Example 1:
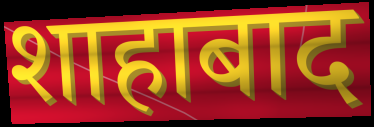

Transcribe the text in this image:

शाहाबाद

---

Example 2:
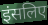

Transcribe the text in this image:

इंसलिए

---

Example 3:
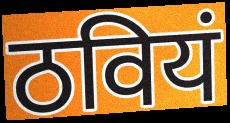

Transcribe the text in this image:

ठवियं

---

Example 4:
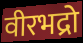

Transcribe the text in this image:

वीरभद्रो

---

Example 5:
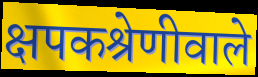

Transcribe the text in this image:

क्षपकश्रेणीवाले